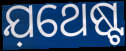
ଯ଼ଥେଷ୍ଟ